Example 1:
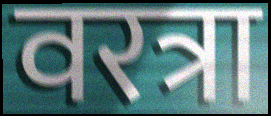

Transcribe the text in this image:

वरत्रा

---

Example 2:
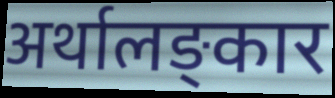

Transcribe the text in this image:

अर्थालङ्कार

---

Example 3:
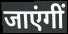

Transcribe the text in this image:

जाएंगीं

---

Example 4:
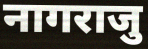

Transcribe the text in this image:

नागराजु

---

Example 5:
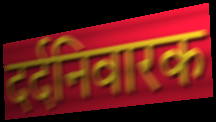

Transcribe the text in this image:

दर्दनिवारक